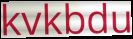
kvkbdu